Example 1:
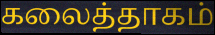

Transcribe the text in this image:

கலைத்தாகம்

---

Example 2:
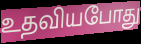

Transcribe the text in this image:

உதவியபோது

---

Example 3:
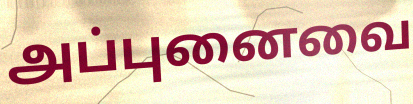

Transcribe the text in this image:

அப்புனைவை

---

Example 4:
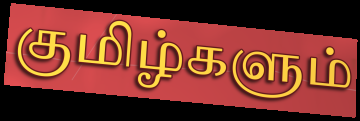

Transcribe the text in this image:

குமிழ்களும்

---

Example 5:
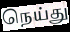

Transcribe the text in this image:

நெய்து